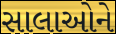
સાલાઓને